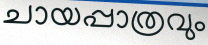
ചായപ്പാത്രവും